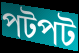
পটপট